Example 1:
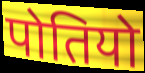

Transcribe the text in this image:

पोतियो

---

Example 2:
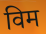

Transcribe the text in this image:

विम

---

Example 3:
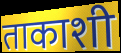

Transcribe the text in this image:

ताकाशी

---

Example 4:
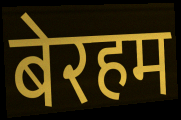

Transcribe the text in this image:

बेरहम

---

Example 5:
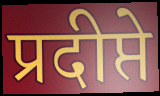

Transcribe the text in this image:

प्रदीप्ते